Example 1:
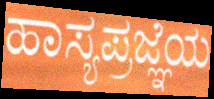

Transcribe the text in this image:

ಹಾಸ್ಯಪ್ರಜ್ಞೆಯ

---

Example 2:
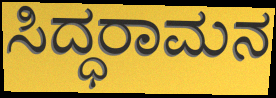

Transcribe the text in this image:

ಸಿದ್ಧರಾಮನ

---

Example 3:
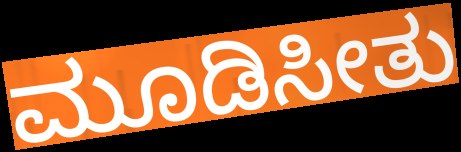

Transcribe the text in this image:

ಮೂಡಿಸೀತು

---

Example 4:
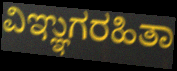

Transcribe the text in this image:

ವಿಞ್ಞುಗರಹಿತಾ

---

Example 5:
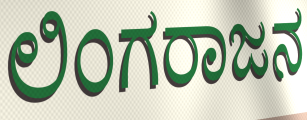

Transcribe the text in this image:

ಲಿಂಗರಾಜನ